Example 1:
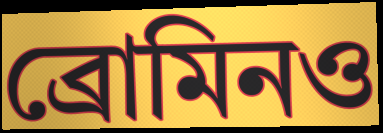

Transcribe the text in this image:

ব্রোমিনও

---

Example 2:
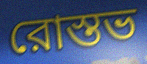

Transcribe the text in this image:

রোস্তভ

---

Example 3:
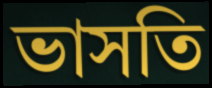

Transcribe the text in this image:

ভাসতি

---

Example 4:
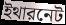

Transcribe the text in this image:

ইথারনেট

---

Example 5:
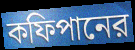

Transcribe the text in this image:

কফিপানের